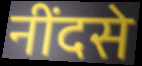
नींदसे